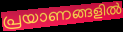
പ്രയാണങ്ങളിൽ